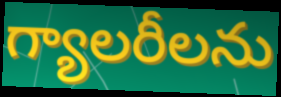
గ్యాలరీలను